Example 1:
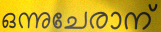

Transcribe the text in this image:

ഒന്നുചേരാന്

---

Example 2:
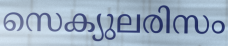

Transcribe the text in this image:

സെക്യുലരിസം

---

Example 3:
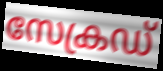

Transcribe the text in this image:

സേക്രഡ്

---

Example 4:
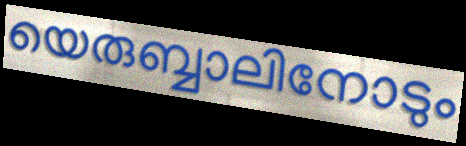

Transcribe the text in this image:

യെരുബ്ബാലിനോടും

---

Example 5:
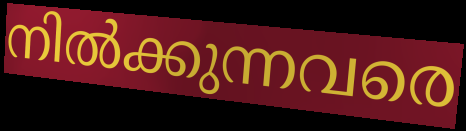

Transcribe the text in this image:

നിൽക്കുന്നവരെ